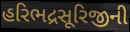
હરિભદ્રસૂરિજીની